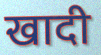
खादी